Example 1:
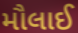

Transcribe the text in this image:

મૌલાઈ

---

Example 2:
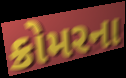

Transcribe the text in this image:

ક્રોમરના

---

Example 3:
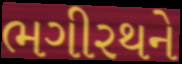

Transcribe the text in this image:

ભગીરથને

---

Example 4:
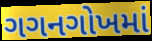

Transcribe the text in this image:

ગગનગોખમાં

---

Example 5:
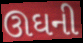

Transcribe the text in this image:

ઊઘની